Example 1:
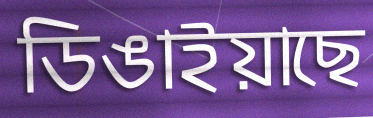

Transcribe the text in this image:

ডিঙাইয়াছে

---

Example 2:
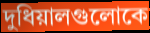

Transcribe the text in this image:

দুধিয়ালগুলোকে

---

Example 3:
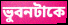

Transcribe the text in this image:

ভুবনটাকে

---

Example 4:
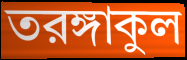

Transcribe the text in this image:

তরঙ্গাকুল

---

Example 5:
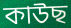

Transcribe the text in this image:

কাউছ